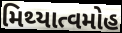
મિથ્યાત્વમોહ